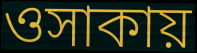
ওসাকায়